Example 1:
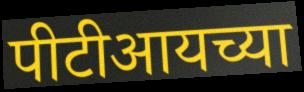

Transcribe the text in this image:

पीटीआयच्या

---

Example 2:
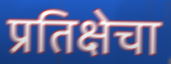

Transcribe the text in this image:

प्रतिक्षेचा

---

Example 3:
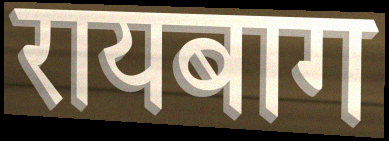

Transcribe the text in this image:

रायबाग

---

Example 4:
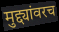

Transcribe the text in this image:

मुद्द्यांवरच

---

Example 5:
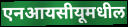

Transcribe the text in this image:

एनआयसीयूमधील